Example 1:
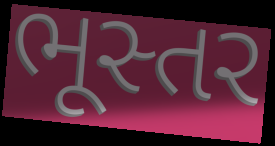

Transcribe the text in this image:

ભૂસ્તર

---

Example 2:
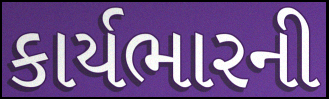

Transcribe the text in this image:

કાર્યભારની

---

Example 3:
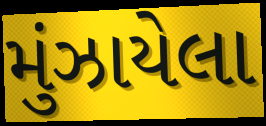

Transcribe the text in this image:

મુંઝાયેલા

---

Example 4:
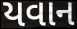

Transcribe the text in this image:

યવાન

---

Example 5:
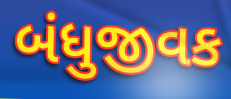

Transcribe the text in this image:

બંધુજીવક